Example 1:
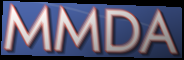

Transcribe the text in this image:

MMDA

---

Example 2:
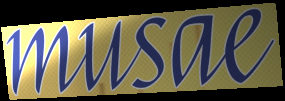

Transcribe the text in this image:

musae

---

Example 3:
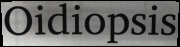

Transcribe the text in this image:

Oidiopsis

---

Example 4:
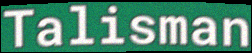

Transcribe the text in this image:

Talisman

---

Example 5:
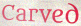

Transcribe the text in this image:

Carved